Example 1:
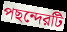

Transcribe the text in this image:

পছন্দেরটি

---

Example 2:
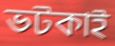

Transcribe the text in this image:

ভটকাই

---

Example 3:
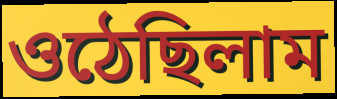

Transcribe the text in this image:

ওঠেছিলাম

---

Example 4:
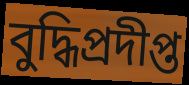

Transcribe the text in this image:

বুদ্ধিপ্রদীপ্ত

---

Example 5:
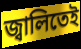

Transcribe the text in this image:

জ্বালিতেই